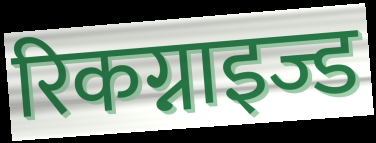
रिकग्नाइज्ड